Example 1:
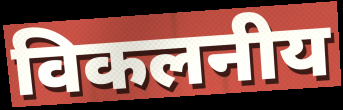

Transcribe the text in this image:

विकलनीय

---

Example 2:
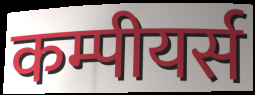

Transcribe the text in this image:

कम्पीयर्स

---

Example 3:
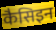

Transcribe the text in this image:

कैसिइन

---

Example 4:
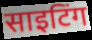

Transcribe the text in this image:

साइटिंग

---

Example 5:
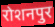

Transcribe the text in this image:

रोशनपुर